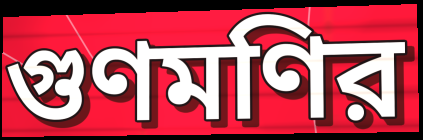
গুণমণির